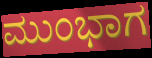
ಮುಂಭಾಗ